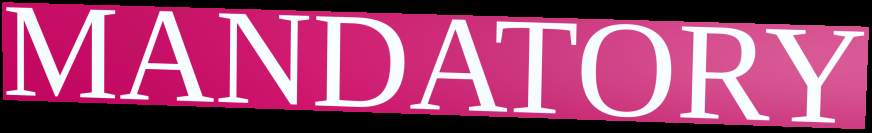
MANDATORY